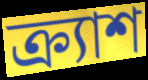
ক্র্যাশ